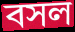
বসল